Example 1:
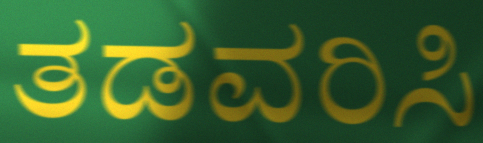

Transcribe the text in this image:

ತಡವರಿಸಿ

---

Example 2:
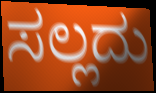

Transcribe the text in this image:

ಸಲ್ಲದು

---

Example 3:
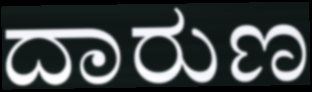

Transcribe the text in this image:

ದಾರುಣ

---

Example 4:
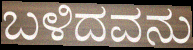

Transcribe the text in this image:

ಬಳಿದವನು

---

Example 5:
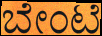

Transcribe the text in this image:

ಬೇಂಟೆ